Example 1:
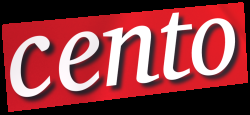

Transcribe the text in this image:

cento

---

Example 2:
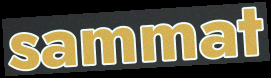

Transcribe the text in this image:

sammat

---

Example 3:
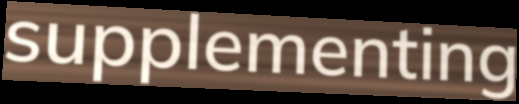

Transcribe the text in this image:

supplementing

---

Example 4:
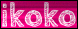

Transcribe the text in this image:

ikoko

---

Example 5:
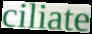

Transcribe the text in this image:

ciliate